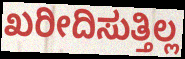
ಖರೀದಿಸುತ್ತಿಲ್ಲ